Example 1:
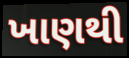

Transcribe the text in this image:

ખાણથી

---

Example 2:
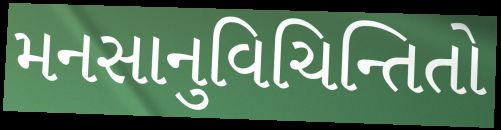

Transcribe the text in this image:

મનસાનુવિચિન્તિતો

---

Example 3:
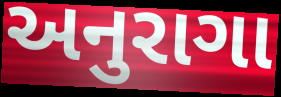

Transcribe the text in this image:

અનુરાગા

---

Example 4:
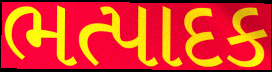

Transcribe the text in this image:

ભત્પાદક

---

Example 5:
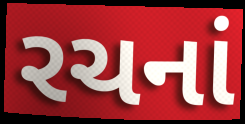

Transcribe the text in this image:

રચનાં